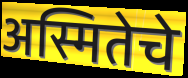
अस्मितेचे